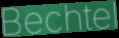
Bechtel